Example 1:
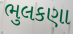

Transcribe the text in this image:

ભુલકણા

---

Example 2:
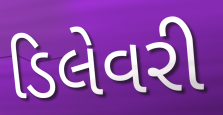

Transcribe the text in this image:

ડિલેવરી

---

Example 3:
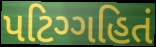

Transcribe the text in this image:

પટિગ્ગહિતં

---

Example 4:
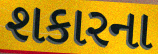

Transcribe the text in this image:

શકારના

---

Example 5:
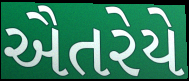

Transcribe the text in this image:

ઐતરેયે